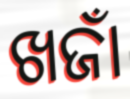
ଖଜାଁ